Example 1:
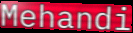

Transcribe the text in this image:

Mehandi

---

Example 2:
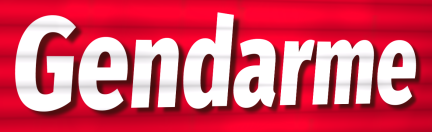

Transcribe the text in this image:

Gendarme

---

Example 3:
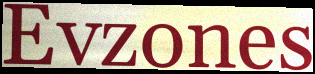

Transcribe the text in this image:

Evzones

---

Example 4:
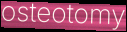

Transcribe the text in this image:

osteotomy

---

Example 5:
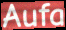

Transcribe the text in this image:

Aufa